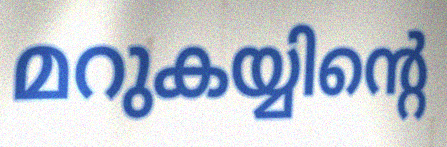
മറുകയ്യിന്റെ